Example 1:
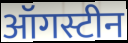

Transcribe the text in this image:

ऑगस्टीन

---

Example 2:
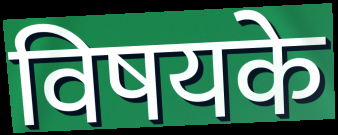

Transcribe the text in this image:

विषयके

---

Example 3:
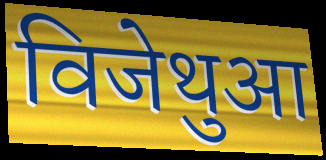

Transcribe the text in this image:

विजेथुआ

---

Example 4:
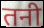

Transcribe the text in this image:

तनी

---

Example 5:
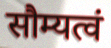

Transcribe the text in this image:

सौम्यत्वं